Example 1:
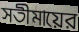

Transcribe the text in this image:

সতীমায়ের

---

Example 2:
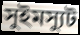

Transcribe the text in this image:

সুইমস্যুট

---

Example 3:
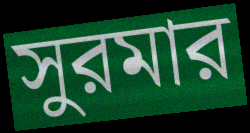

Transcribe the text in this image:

সুরমার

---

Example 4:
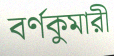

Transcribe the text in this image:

বর্ণকুমারী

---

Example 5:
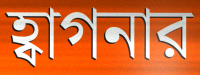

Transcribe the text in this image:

হ্বাগনার